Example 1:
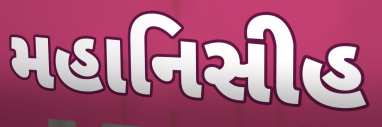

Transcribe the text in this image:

મહાનિસીહ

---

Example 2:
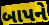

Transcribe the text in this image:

બાપને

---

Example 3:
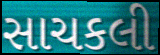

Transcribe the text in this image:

સાચકલી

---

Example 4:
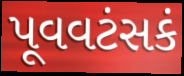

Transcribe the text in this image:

પૂવવટંસકં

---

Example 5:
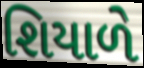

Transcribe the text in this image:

શિયાળે